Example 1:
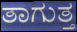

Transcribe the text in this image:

ತಾಗುತ್ತ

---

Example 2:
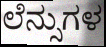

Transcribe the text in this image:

ಲೆನ್ಸುಗಳ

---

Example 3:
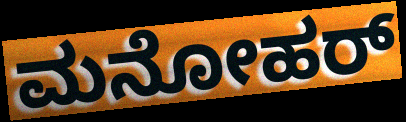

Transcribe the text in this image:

ಮನೋಹರ್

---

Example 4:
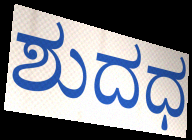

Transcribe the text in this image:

ಶುದಧ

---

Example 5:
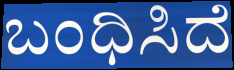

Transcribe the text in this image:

ಬಂಧಿಸಿದೆ